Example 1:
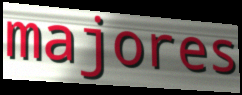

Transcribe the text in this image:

majores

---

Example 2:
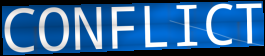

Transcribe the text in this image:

CONFLICT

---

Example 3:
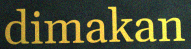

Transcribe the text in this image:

dimakan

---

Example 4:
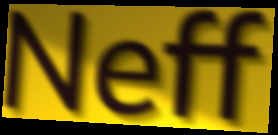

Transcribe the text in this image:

Neff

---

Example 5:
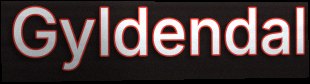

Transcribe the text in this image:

Gyldendal